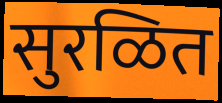
सुरळित